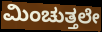
ಮಿಂಚುತ್ತಲೇ